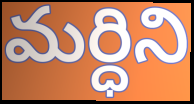
మర్ధిని